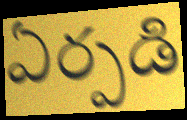
ఏర్పడి